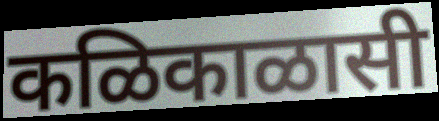
कळिकाळासी